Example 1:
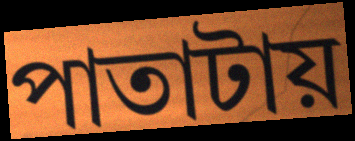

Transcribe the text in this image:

পাতাটায়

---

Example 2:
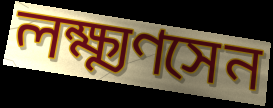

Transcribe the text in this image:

লক্ষ্মণসেন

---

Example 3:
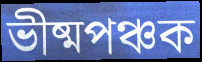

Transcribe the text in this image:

ভীষ্মপঞ্চক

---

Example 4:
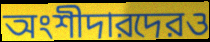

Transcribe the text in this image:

অংশীদারদেরও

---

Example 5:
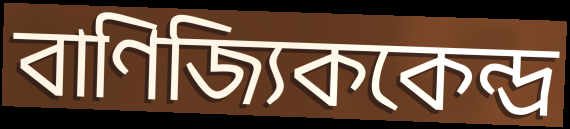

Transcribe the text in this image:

বাণিজ্যিককেন্দ্র